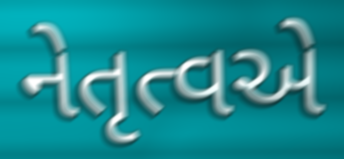
નેતૃત્વએ